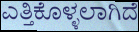
ಎತ್ತಿಕೊಳ್ಳಲಾಗಿದೆ